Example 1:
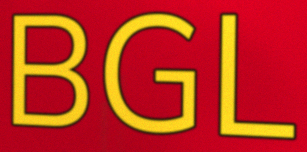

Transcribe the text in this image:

BGL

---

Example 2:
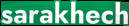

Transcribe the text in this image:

sarakhech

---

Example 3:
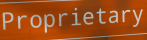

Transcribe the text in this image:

Proprietary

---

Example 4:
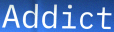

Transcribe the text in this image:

Addict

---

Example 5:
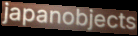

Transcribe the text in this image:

japanobjects